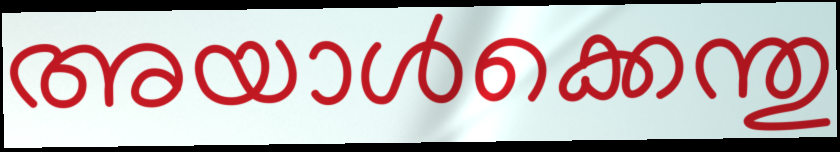
അയാൾക്കെന്തു